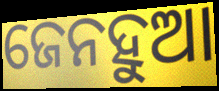
ଜେନହୁଆ